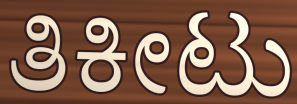
ತಿಕೀಟು